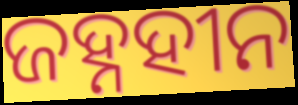
ଜହ୍ନହୀନ